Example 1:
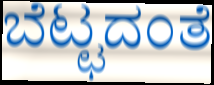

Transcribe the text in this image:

ಬೆಟ್ಟದಂತೆ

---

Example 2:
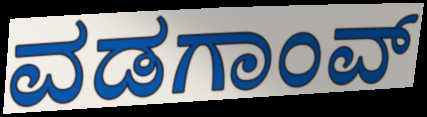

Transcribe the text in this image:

ವಡಗಾಂವ್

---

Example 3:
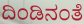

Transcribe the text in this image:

ದಿಂಡಿನಂತೆ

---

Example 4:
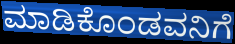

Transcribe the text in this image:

ಮಾಡಿಕೊಂಡವನಿಗೆ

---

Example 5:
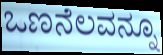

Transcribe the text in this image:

ಒಣನೆಲವನ್ನೂ